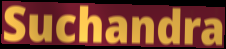
Suchandra